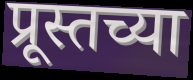
प्रूस्तच्या